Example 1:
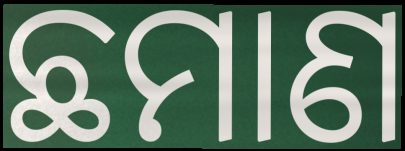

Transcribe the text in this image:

ଛମାଣ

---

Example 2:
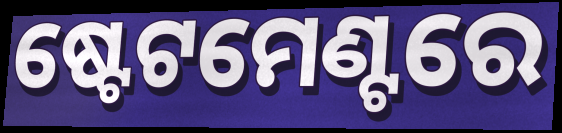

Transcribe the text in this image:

ଷ୍ଟେଟମେଣ୍ଟରେ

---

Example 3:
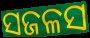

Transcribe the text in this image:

ସଜଳସ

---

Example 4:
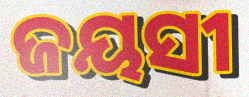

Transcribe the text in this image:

ଜୟସୀ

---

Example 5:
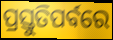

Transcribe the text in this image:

ପ୍ରସ୍ତୁତିପର୍ବରେ